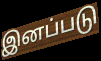
இனப்படு